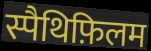
स्पैथिफ़िलम